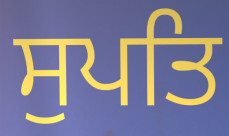
ਸੁਪਤਿ